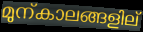
മുന്കാലങ്ങളില്